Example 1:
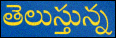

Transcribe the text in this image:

తెలుస్తున్న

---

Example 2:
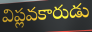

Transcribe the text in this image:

విప్లవకారుడు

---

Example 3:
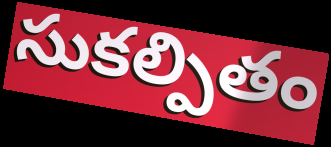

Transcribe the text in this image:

సుకల్పితం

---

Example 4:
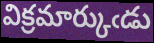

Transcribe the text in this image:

విక్రమార్కుఁడు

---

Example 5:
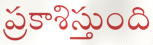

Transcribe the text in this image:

ప్రకాశిస్తుంది